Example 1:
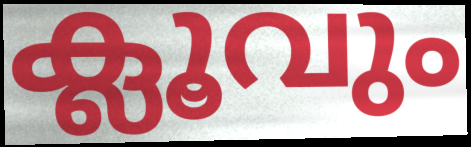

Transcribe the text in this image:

ക്ലൂവും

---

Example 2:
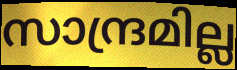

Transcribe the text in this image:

സാന്ദ്രമില്ല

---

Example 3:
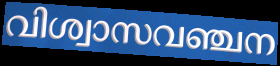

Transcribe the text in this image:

വിശ്വാസവഞ്ചന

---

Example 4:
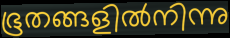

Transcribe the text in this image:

ഭൂതങ്ങളിൽനിന്നു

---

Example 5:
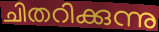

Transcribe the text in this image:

ചിതറിക്കുന്നു